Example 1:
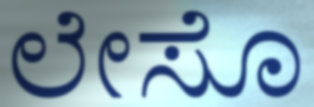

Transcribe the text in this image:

ಲೇಸೊ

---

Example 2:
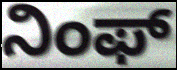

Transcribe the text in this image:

ನಿಂಫ್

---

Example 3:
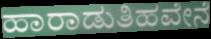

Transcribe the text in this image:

ಹಾರಾಡುತಿಹವೇನೆ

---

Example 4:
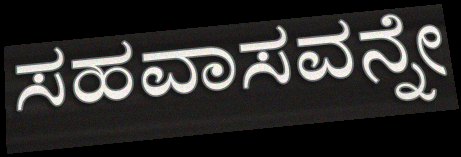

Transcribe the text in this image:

ಸಹವಾಸವನ್ನೇ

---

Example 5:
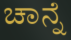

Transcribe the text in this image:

ಚಾನ್ನೆ